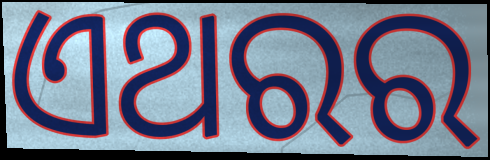
ଏଥରର